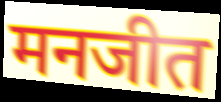
मनजीत